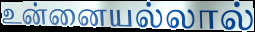
உன்னையல்லால்